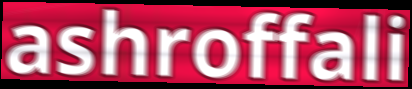
ashroffali